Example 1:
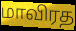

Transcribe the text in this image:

மாவிரத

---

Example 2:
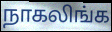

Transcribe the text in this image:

நாகலிங்க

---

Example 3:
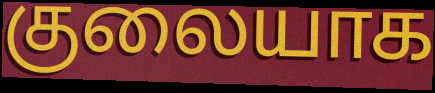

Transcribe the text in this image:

குலையாக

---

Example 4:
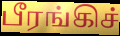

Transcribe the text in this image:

பீரங்கிச்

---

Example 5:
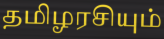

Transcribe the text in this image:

தமிழரசியும்